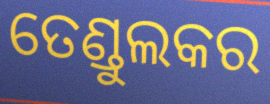
ତେଣ୍ଡୁଲକର